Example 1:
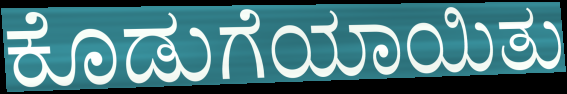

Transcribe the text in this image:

ಕೊಡುಗೆಯಾಯಿತು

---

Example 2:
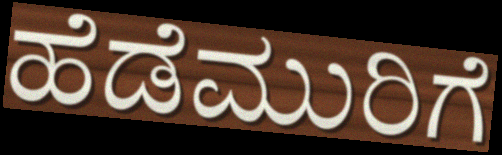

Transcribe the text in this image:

ಹೆಡೆಮುರಿಗೆ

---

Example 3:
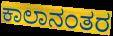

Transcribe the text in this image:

ಕಾಲಾನಂತರ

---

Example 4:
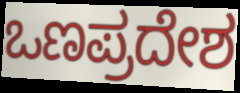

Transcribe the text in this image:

ಒಣಪ್ರದೇಶ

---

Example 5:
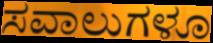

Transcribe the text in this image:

ಸವಾಲುಗಳೂ